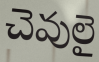
చెవులై